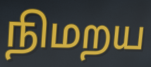
நிமறய